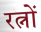
रत्नों